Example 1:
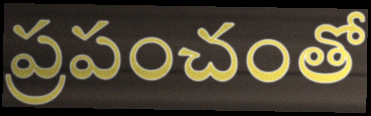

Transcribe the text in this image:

ప్రపంచంతో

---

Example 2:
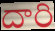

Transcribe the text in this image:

దారి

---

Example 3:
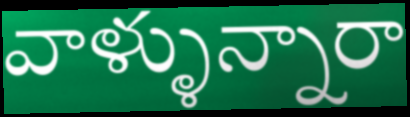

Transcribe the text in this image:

వాళ్ళున్నారా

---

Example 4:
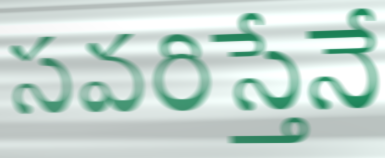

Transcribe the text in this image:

సవరిస్తేనే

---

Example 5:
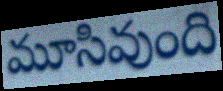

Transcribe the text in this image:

మూసివుంది